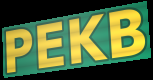
PEKB